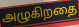
அழுகிறதை